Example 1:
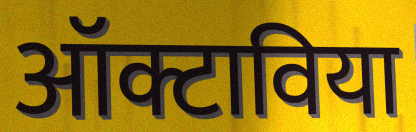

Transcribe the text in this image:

ऑक्टाविया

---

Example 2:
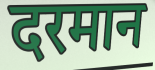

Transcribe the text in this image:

दरमान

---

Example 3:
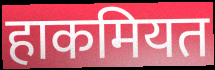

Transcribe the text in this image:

हाकमियत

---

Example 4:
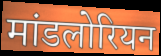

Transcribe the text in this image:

मांडलोरियन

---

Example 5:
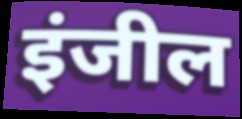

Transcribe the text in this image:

इंजील